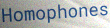
Homophones